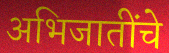
अभिजातींचे